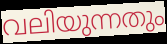
വലിയുന്നതും